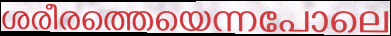
ശരീരത്തെയെന്നപോലെ